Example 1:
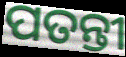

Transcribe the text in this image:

ପତନ୍ତୀ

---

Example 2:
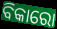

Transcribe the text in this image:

ବିକାରୋ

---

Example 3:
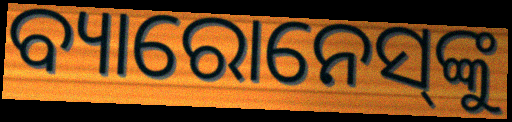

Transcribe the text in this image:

ବ୍ୟାରୋନେସ୍‌ଙ୍କୁ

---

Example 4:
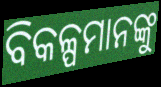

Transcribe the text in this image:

ବିକଳ୍ପମାନଙ୍କୁ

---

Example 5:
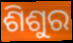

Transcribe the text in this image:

ଶିଶୁର